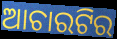
ଆଚାରଟିର